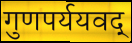
गुणपर्ययवद्